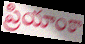
ప్రియాంకా